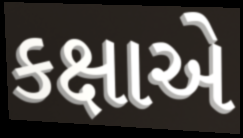
કક્ષાએ